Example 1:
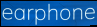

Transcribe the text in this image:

earphone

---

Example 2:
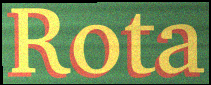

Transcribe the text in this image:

Rota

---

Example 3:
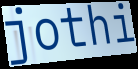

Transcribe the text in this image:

jothi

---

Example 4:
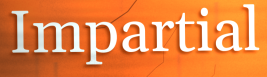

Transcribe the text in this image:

Impartial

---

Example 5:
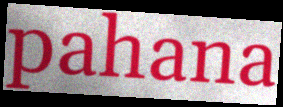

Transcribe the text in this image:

pahana